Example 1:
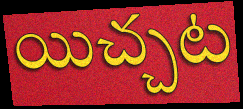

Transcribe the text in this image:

యిచ్చట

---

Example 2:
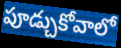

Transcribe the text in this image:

పూడ్చుకోవాలో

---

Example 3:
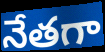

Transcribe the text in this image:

నేతగా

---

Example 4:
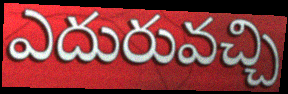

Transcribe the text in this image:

ఎదురువచ్చి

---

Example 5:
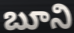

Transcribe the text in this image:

బూని